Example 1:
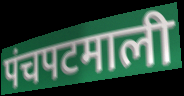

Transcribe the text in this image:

पंचपटमाली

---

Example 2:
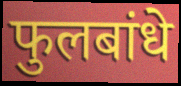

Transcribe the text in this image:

फुलबांधे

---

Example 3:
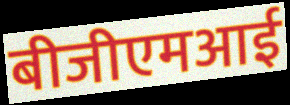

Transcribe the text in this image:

बीजीएमआई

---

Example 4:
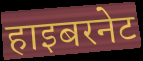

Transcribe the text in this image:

हाइबरनेट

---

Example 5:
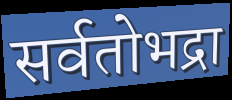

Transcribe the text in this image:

सर्वतोभद्रा